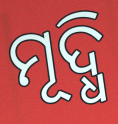
ମୂଦ୍ଧି